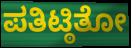
ಪತಿಟ್ಠಿತೋ